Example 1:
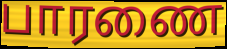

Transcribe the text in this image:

பாரணை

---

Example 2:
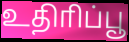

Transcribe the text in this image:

உதிரிப்பூ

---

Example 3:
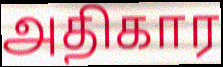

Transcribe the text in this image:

அதிகார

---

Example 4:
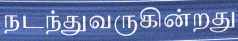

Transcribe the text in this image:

நடந்துவருகின்றது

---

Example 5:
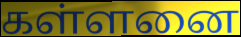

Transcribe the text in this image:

கள்ளனை